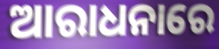
ଆରାଧନାରେ